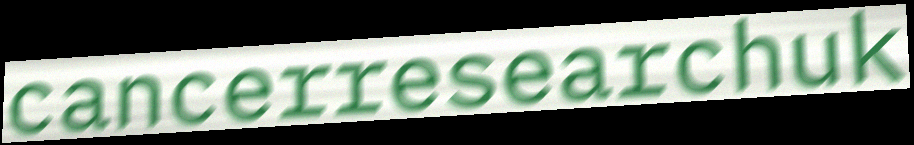
cancerresearchuk